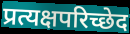
प्रत्यक्षपरिच्छेद